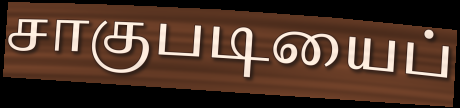
சாகுபடியைப்